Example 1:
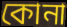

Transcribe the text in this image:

কোনা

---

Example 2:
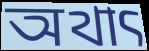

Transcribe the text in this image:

অথাৎ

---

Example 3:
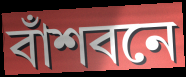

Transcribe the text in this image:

বাঁশবনে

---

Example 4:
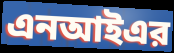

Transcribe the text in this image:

এনআইএর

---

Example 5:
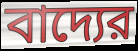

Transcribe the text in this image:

বাদ্যের